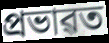
প্ৰভাৱত